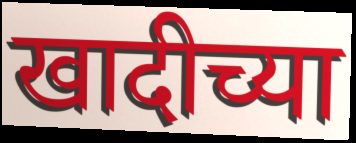
खादीच्या